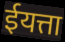
ईयत्ता